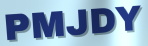
PMJDY